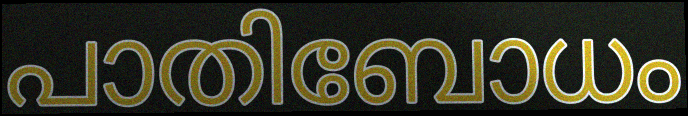
പാതിബോധം